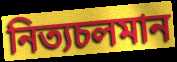
নিত্যচলমান